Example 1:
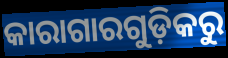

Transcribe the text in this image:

କାରାଗାରଗୁଡ଼ିକରୁ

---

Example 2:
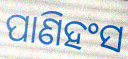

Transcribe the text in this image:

ପାଣିହଂସ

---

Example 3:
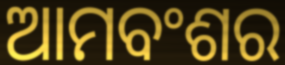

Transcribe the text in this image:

ଆମବଂଶର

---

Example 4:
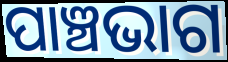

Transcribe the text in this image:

ପାଞ୍ଚଭାଗ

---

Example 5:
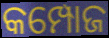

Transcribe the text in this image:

କମ୍ପୋଜ